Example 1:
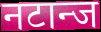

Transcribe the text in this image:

नटान्ज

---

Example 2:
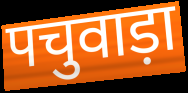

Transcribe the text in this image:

पचुवाड़ा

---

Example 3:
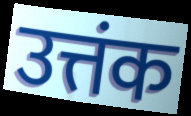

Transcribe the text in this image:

उत्तंक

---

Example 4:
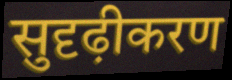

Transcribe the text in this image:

सुदृढ़ीकरण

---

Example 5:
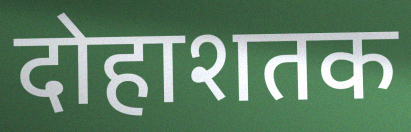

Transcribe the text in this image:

दोहाशतक